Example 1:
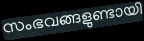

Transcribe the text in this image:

സംഭവങ്ങളുണ്ടായി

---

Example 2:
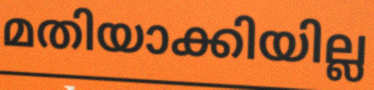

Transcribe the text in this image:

മതിയാക്കിയില്ല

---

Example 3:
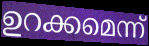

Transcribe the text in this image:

ഉറക്കമെന്ന്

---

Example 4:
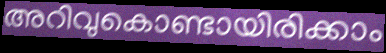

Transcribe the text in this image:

അറിവുകൊണ്ടായിരിക്കാം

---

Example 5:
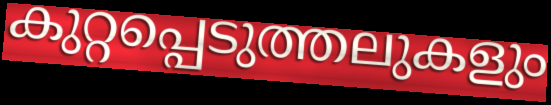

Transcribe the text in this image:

കുറ്റപ്പെടുത്തലുകളും